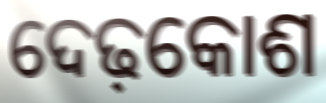
ଦେଢ଼କୋଶ